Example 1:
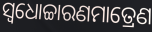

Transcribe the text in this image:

ସ୍ଵଧୋଚ୍ଚାରଣମାତ୍ରେଣ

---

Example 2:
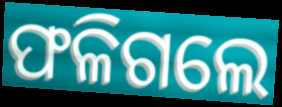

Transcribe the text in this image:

ଫଳିଗଲେ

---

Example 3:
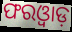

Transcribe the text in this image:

ଫରଓ୍ୱାଡ଼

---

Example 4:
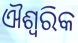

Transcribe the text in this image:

ଐଶ୍ୱରିକ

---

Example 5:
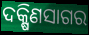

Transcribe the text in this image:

ଦକ୍ଷିଣସାଗର